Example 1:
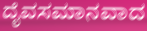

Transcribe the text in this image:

ದೈವಸಮಾನವಾದ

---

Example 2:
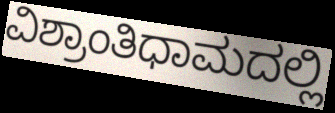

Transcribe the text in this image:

ವಿಶ್ರಾಂತಿಧಾಮದಲ್ಲಿ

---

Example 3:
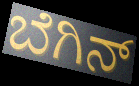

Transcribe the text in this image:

ಬೆಗಿನ್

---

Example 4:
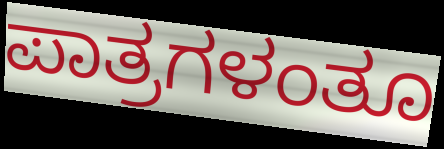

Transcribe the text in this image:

ಪಾತ್ರಗಳಂತೂ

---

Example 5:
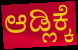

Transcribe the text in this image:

ಆಡ್ಲಿಕ್ಕೆ